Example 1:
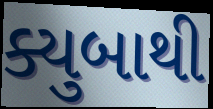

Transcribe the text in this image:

ક્યુબાથી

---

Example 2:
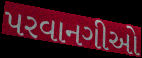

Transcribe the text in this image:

પરવાનગીઓ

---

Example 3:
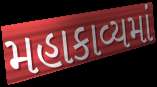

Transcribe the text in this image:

મહાકાવ્યમાં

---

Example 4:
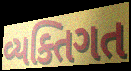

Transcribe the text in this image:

વ્યક્તિગત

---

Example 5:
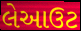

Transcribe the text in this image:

લેઆઉટ